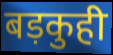
बड़कुही